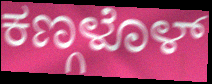
ಕಣ್ಗಳೊಳ್